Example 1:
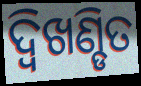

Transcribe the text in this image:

ଦ୍ଵିଖଣ୍ଡିତ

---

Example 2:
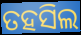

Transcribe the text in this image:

ତହସିଲ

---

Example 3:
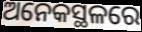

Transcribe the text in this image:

ଅନେକସ୍ଥଳରେ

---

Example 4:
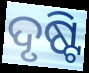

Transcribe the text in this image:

ଦୃଷ୍ଟି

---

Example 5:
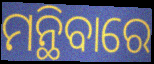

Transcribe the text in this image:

ମନ୍ଥିବାରେ